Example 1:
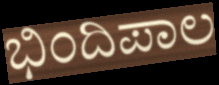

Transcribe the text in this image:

ಭಿಂದಿಪಾಲ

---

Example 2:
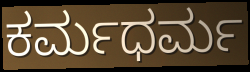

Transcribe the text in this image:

ಕರ್ಮಧರ್ಮ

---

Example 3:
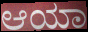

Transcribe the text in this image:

ಆಯಾ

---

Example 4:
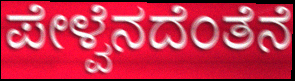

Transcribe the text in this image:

ಪೇಳ್ವೆನದೆಂತೆನೆ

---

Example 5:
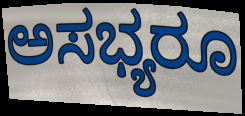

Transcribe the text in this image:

ಅಸಭ್ಯರೂ